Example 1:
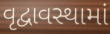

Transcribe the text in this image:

વૃદ્વાવસ્થામાં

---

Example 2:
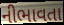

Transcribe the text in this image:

નીભાવતા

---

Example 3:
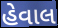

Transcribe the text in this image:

હેવાલ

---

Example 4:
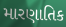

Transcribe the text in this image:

મારણાતિક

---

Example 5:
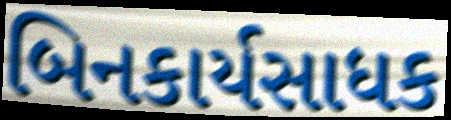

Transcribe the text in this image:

બિનકાર્યસાધક